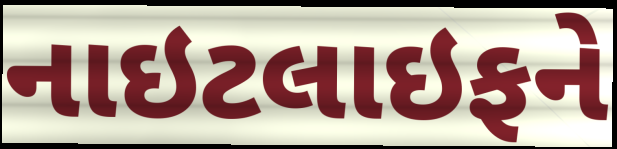
નાઇટલાઇફને